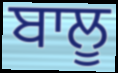
ਬਾਲੂ